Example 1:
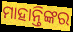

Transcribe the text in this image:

ମାହାନ୍ତିଙ୍କର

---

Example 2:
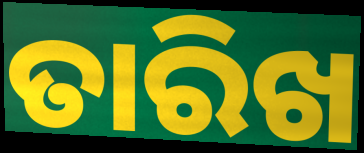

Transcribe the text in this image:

ତାରିଖ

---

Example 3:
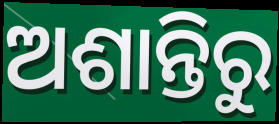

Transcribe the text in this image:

ଅଶାନ୍ତିରୁ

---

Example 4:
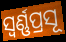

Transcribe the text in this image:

ସ୍ବର୍ଣ୍ଣପ୍ରସୂ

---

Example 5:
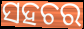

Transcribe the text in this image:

ସହଚର